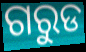
ଗରୁଡ